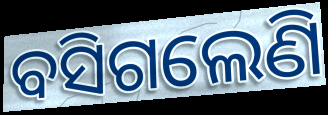
ବସିଗଲେଣି